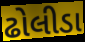
ઢોલીડા